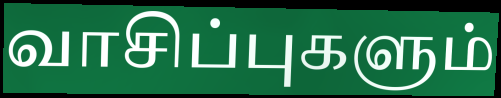
வாசிப்புகளும்